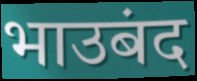
भाउबंद